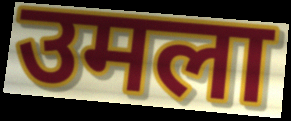
उमला